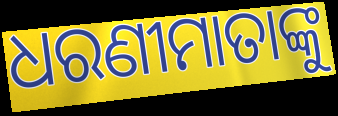
ଧରଣୀମାତାଙ୍କୁ